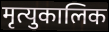
मृत्युकालिक